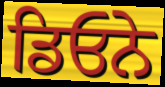
ਡਿਓਨੇ